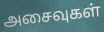
அசைவுகள்